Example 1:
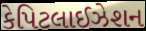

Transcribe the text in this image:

કેપિટલાઈઝેશન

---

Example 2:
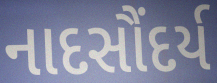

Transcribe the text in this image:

નાદસૌંદર્ય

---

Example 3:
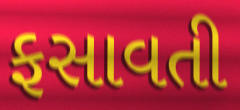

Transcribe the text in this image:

ફસાવતી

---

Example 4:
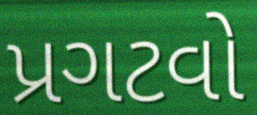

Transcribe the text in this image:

પ્રગટવો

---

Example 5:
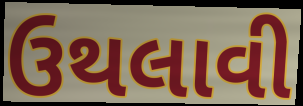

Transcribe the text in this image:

ઉથલાવી